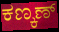
ಕಣ್ಕಣ್